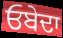
ਓਬੇਦਾ